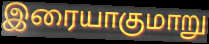
இரையாகுமாறு